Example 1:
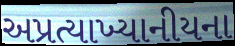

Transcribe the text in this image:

અપ્રત્યાખ્યાનીયના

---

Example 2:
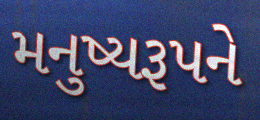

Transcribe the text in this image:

મનુષ્યરૂપને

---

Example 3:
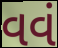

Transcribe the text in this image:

વવં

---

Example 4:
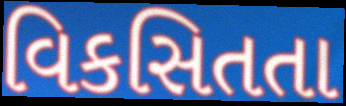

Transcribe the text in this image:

વિકસિતતા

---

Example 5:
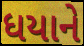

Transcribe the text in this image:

ધયાને